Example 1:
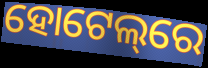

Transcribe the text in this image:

ହୋଟେଲ୍‌ରେ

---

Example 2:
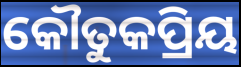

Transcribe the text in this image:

କୌତୁକପ୍ରିୟ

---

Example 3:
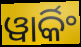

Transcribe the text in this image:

ୱାର୍କିଂ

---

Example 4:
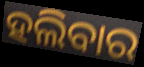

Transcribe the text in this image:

ହଲିବାର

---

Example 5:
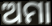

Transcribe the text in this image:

ଅମା